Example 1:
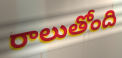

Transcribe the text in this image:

రాలుతోంది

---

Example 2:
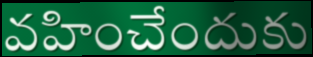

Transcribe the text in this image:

వహించేందుకు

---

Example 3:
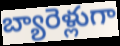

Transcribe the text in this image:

బ్యారెళ్లుగా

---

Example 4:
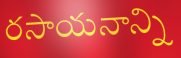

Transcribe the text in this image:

రసాయనాన్ని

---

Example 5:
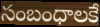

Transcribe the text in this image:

సంబంధాలకే